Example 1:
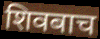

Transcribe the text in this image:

शिवबाच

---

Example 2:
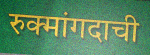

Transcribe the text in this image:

रुक्मांगदाची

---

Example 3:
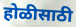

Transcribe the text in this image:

होळीसाठी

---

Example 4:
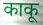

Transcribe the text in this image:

काकू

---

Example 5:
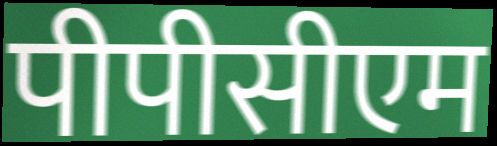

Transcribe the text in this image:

पीपीसीएम